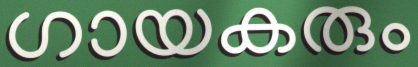
ഗായകരും